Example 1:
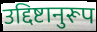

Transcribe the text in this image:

उद्दिष्टानुरूप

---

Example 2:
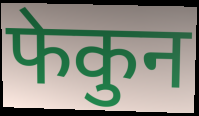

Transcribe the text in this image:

फेकुन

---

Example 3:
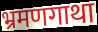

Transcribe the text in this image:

भ्रमणगाथा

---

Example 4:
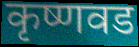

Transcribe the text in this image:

कृष्णवड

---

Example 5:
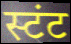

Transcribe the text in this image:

स्टंट